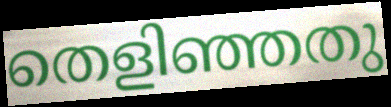
തെളിഞ്ഞതു